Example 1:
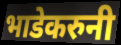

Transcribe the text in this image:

भाडेकरुनी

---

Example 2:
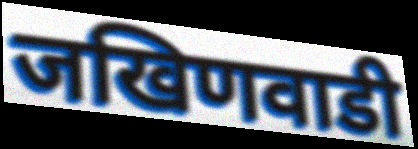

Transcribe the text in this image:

जखिणवाडी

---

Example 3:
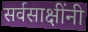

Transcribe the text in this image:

सर्वसाक्षींनी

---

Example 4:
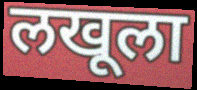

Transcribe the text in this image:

लखूला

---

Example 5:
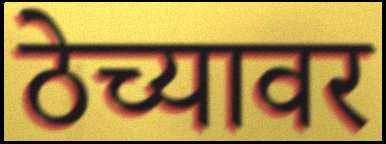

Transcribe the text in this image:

ठेच्यावर